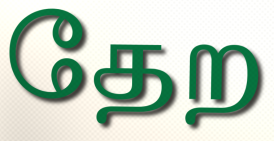
தேற